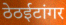
ठेठईटांगर